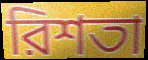
রিশতা